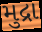
મુદ્રા